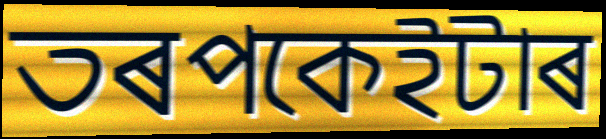
তৰপকেইটাৰ